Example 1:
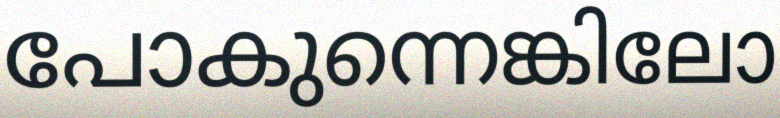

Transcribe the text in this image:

പോകുന്നെങ്കിലോ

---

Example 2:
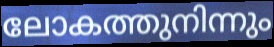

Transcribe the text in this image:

ലോകത്തുനിന്നും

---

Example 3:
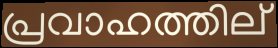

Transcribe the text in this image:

പ്രവാഹത്തില്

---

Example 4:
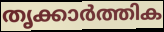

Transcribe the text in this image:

തൃക്കാർത്തിക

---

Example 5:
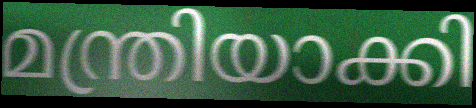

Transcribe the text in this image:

മന്ത്രിയാക്കി